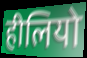
हीलियो